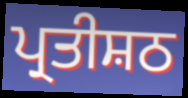
ਪ੍ਰਤੀਸ਼ਠ